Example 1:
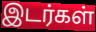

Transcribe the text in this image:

இடர்கள்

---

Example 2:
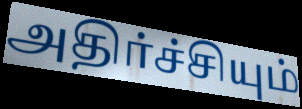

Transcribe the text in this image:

அதிர்ச்சியும்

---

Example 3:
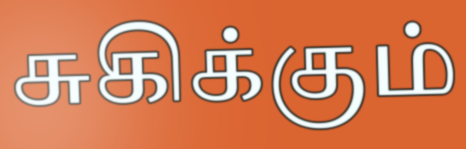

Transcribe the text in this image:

சுகிக்கும்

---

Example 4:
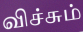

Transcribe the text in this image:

விச்சும்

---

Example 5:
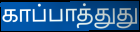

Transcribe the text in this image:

காப்பாத்துது